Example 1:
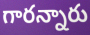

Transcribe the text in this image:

గారన్నారు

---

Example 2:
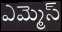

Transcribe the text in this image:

ఎమ్మెస్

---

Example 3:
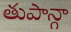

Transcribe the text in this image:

తుపాన్గా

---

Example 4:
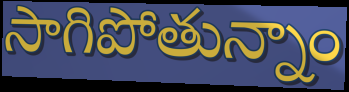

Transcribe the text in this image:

సాగిపోతున్నాం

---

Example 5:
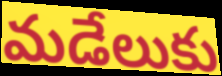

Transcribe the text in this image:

మడేలుకు